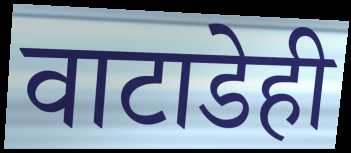
वाटाडेही